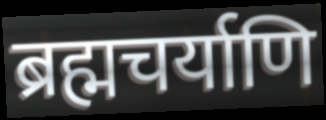
ब्रह्मचर्याणि